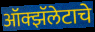
ऑक्झॅलेटाचे